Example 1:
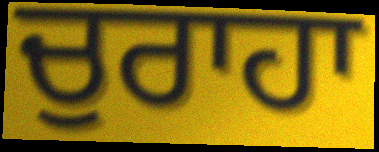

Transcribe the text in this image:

ਚੁਰਾਹਾ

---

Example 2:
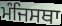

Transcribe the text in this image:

ਮੰਜਿਸਥਾ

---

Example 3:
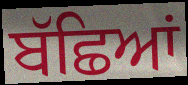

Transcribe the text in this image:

ਬੱਛਿਆਂ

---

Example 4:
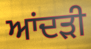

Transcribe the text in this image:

ਆਂਦੜੀ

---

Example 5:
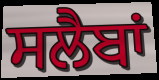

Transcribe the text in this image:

ਸਲੈਬਾਂ